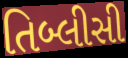
તિબ્લીસી